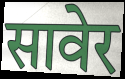
सावेर